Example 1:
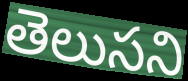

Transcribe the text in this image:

తెలుసని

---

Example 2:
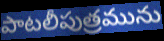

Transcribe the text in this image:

పాటలీపుత్రమును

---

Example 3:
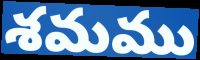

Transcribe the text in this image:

శమము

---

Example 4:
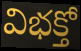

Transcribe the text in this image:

విభక్తో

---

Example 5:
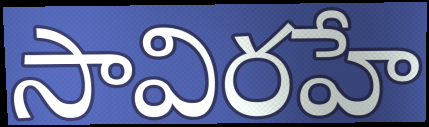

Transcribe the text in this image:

సావిరహే